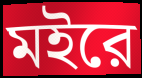
মইরে